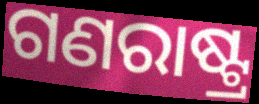
ଗଣରାଷ୍ଟ୍ର